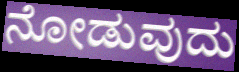
ನೋಡುವುದು